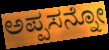
ಅಪ್ಪಸನ್ನೋ